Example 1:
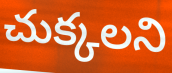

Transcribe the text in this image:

చుక్కలని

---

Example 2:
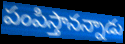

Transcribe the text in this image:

పంపిస్తానన్నాడు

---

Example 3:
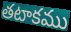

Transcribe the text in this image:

తటాకము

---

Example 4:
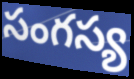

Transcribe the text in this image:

సంగస్య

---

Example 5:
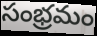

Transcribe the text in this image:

సంభ్రమం